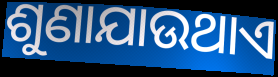
ଶୁଣାଯାଉଥାଏ